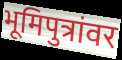
भूमिपुत्रांवर